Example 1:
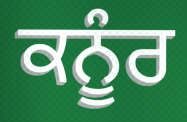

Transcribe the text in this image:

ਕਨੂੰਰ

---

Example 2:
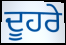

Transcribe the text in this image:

ਦੂਹਰੇ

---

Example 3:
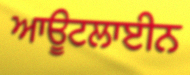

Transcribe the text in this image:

ਆਊਟਲਾਈਨ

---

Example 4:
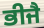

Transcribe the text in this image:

ਭੀਜੈ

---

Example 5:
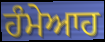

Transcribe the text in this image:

ਹੰਮੇਆਹ